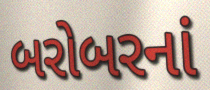
બરોબરનાં